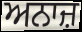
ਅਨਾਜ਼